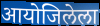
आयोजिलेला